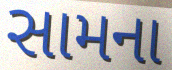
સામના